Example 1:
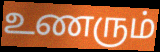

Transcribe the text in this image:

உணரும்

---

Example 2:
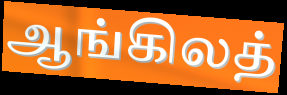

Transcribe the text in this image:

ஆங்கிலத்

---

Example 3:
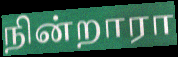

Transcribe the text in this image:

நின்றாரா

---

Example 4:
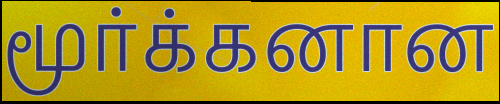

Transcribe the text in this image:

மூர்க்கனான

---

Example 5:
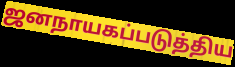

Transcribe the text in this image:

ஜனநாயகப்படுத்திய